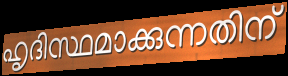
ഹൃദിസ്ഥമാക്കുന്നതിന്